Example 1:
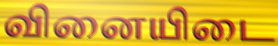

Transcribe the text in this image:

வினையிடை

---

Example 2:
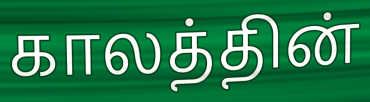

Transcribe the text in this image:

காலத்தின்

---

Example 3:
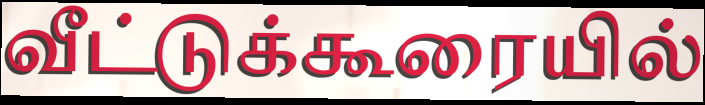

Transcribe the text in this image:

வீட்டுக்கூரையில்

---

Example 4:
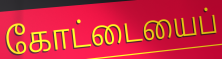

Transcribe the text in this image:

கோட்டையைப்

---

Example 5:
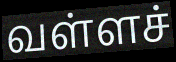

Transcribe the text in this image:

வள்ளச்